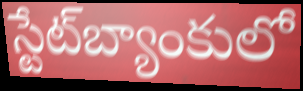
స్టేట్‌బ్యాంకులో